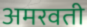
अमरवती